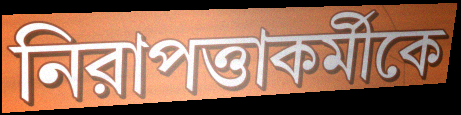
নিরাপত্তাকর্মীকে